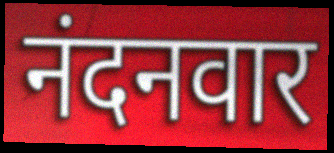
नंदनवार